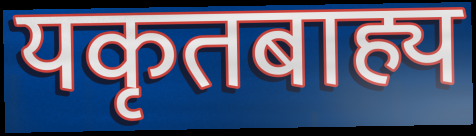
यकृतबाह्य